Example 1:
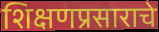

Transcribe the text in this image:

शिक्षणप्रसाराचे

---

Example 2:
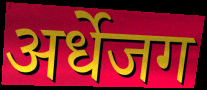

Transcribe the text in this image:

अर्धेजग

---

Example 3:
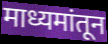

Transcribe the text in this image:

माध्यमांतून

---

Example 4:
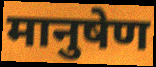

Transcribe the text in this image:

मानुषेण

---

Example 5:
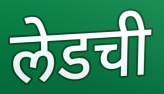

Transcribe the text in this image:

लेडची